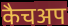
कैचअप